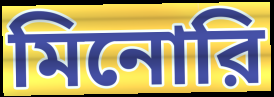
মিনোরি